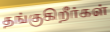
தங்குகிறீர்கள்